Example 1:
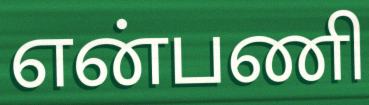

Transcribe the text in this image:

என்பணி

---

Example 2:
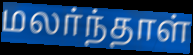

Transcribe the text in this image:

மலர்ந்தாள்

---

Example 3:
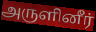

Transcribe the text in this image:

அருளினீர்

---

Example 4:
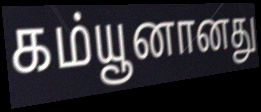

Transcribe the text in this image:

கம்யூனானது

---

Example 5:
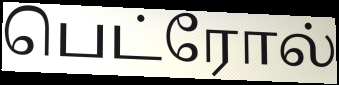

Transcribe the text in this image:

பெட்ரோல்